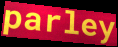
parley